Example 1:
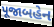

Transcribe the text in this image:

પૂજાબહેન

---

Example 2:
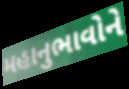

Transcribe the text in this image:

મહાનુભાવોને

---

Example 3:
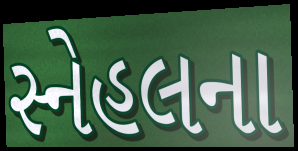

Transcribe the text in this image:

સ્નેહલના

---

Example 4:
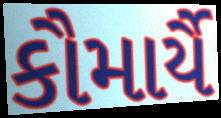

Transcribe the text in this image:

કૌમાર્યૈ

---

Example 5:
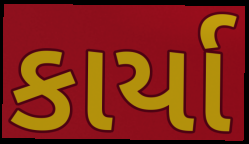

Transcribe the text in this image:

કાર્યા